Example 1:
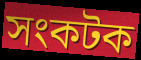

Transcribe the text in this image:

সংকটক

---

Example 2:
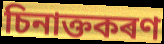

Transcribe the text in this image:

চিনাক্তকৰণ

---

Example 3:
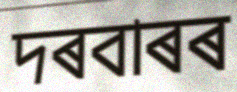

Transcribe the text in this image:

দৰবাৰৰ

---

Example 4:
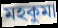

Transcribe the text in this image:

মহকুমা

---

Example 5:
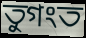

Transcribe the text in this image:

তুগংত